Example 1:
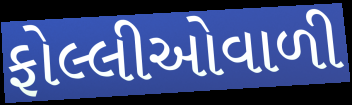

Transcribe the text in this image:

ફોલ્લીઓવાળી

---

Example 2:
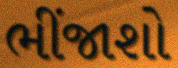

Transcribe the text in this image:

ભીંજાશો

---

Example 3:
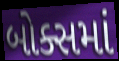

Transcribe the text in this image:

બોક્સમાં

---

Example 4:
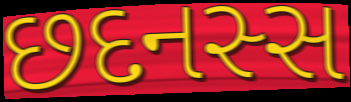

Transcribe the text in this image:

છદનસ્સ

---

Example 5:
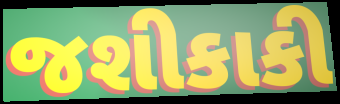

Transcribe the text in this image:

જશીકાકી